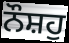
ਨੌਸ਼ਹੁ